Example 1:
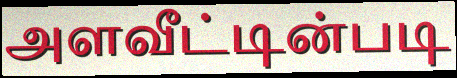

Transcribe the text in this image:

அளவீட்டின்படி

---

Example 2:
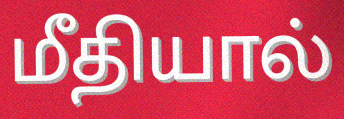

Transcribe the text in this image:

மீதியால்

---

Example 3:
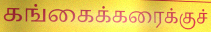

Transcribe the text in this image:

கங்கைக்கரைக்குச்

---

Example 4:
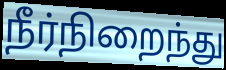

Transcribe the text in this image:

நீர்நிறைந்து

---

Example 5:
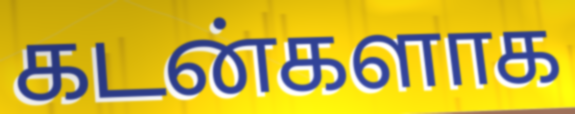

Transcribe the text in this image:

கடன்களாக